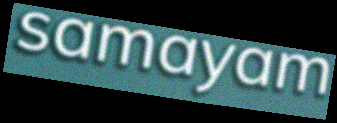
samayam